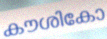
കൗശികോ